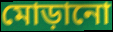
মোড়ানো